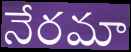
నేరమా